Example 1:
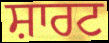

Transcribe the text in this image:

ਸ਼ਾਰਟ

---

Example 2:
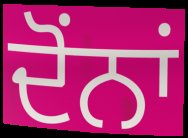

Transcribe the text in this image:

ਦੋਂਨਾਂ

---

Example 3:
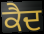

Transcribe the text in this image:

ਕੈਦ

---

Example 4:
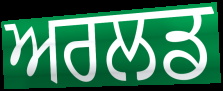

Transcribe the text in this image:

ਅਰਲਡ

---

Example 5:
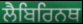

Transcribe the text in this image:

ਲੈਬਿਰਿਨਥ